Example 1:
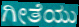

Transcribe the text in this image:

ಗೀತೆಯು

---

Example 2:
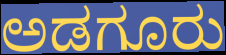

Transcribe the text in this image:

ಅಡಗೂರು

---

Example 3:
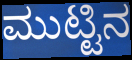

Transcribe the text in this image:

ಮುಟ್ಟಿನ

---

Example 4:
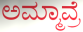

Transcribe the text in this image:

ಅಮ್ಮಾವ್ರೆ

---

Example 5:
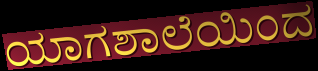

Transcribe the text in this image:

ಯಾಗಶಾಲೆಯಿಂದ